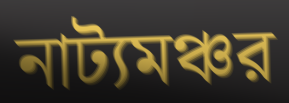
নাট্যমঞ্চর